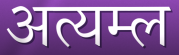
अत्यम्ल